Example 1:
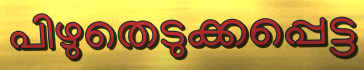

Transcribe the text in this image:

പിഴുതെടുക്കപ്പെട്ട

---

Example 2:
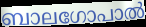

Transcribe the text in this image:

ബാലഗോപാൽ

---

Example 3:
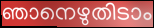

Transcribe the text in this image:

ഞാനെഴുതിടാം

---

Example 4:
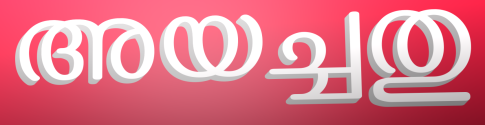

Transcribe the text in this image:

അയച്ചതു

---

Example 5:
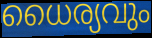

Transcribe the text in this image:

ധൈര്യവും